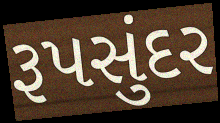
રૂપસુંદર